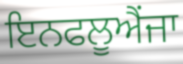
ਇਨਫਲੂਐਂਜਾ